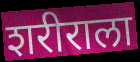
शरीराला